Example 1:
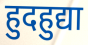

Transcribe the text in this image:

हुदहुद्या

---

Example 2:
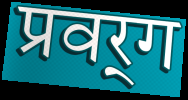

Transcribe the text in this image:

प्रवर्ग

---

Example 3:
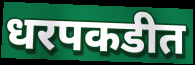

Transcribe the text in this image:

धरपकडीत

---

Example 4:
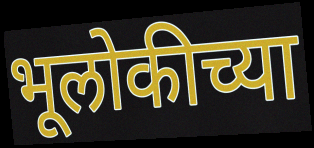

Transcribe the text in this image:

भूलोकीच्या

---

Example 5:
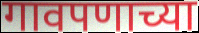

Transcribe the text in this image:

गावपणाच्या